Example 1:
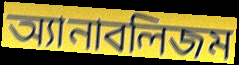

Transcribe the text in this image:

অ্যানাবলিজম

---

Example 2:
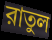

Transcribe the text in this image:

রাতুল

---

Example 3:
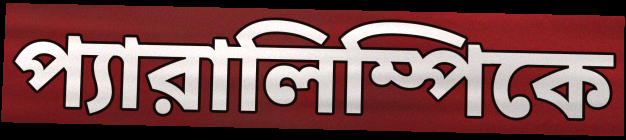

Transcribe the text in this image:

প্যারালিম্পিকে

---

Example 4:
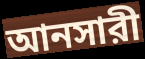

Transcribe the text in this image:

আনসারী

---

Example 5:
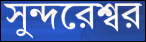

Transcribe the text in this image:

সুন্দরেশ্বর